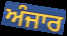
ਅੰਜਾਰ